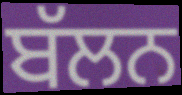
ਬੱਲਨ